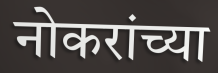
नोकरांच्या